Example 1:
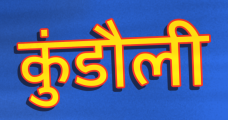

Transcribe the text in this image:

कुंडौली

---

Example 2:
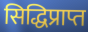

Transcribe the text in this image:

सिद्धिप्राप्त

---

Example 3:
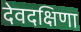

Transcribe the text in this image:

देवदक्षिणा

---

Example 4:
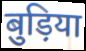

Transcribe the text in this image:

बुड़िया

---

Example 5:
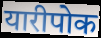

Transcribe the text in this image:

यारीपोक